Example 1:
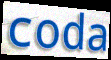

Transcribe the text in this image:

coda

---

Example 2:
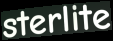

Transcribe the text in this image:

sterlite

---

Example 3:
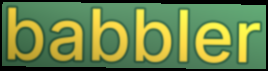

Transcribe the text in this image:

babbler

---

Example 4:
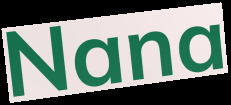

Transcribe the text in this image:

Nana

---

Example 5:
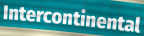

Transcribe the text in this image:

Intercontinental